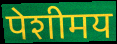
पेशीमय